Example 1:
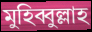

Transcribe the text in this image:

মুহিব্বুল্লাহ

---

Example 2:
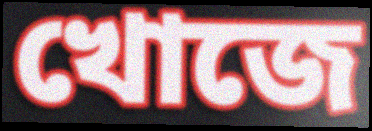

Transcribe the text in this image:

খোজে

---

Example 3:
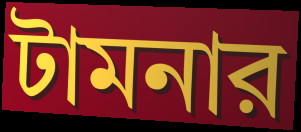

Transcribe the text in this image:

টামনার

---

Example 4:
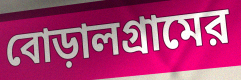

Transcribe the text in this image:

বোড়ালগ্রামের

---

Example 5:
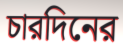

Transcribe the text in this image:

চারদিনের